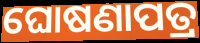
ଘୋଷଣାପତ୍ର